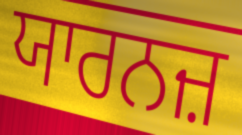
ਯਾਰਨਜ਼